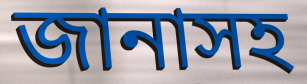
জানাসহ